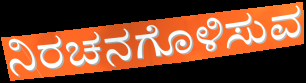
ನಿರಚನಗೊಳಿಸುವ